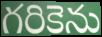
గరికెను